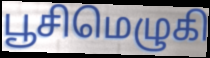
பூசிமெழுகி